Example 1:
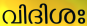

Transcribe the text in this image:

വിദിശഃ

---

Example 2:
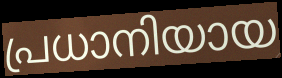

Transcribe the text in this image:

പ്രധാനിയായ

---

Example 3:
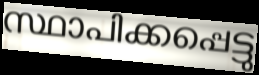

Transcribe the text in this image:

സ്ഥാപിക്കപ്പെട്ടു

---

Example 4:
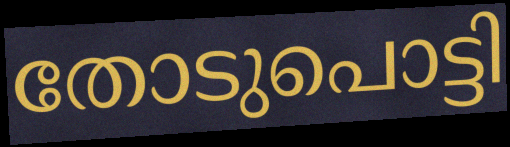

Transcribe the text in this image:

തോടുപൊട്ടി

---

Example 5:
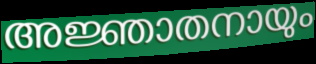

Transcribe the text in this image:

അജ്ഞാതനായും